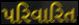
પરિવારિત